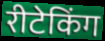
रीटेकिंग